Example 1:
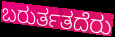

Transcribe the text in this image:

ಬರುರ್ತತದೆರು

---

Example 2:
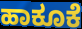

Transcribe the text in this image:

ಹಾಕೂಕೆ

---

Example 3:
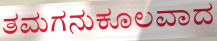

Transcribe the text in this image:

ತಮಗನುಕೂಲವಾದ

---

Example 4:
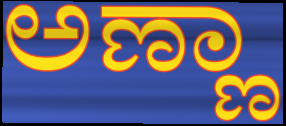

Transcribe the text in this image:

ಅಣ್ಣಾ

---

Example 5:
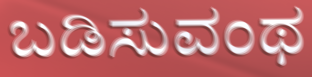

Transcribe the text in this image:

ಬಡಿಸುವಂಥ